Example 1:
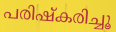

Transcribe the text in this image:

പരിഷ്കരിച്ചൂ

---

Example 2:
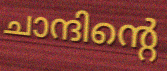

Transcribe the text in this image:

ചാന്ദിന്റെ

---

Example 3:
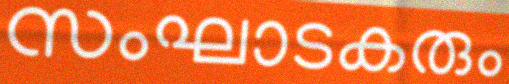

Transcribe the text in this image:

സംഘാടകരും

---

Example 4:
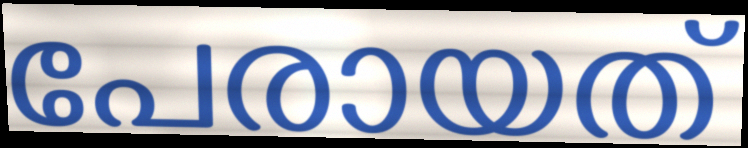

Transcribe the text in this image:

പേരായത്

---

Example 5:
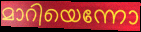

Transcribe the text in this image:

മാറിയെന്നോ